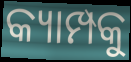
କ୍ୟାମ୍ପକୁ